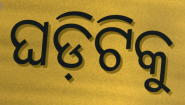
ଘଡ଼ିଟିକୁ